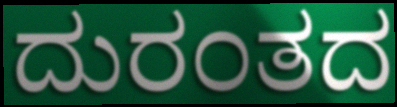
ದುರಂತದ